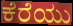
ಕೆರೆಯು